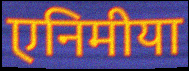
एनिमीया